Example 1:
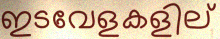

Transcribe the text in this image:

ഇടവേളകളില്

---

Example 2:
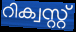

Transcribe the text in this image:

റിക്വസ്റ്റ്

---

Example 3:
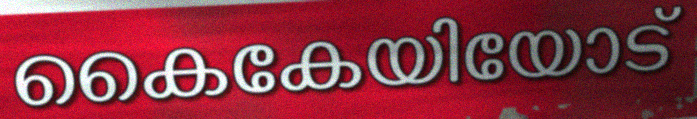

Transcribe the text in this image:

കൈകേയിയോട്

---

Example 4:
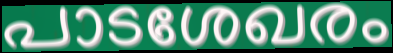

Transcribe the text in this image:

പാടശേഖരം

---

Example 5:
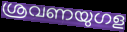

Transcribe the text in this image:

ശ്രവണയുഗള